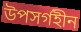
উপসর্গহীন